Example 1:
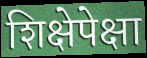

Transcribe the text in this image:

शिक्षेपेक्षा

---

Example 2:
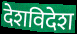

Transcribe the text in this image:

देशविदेश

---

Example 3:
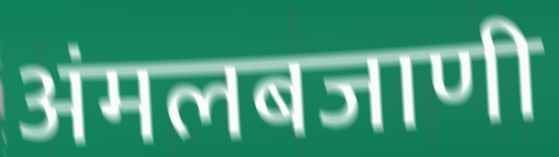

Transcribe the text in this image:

अंमलबजाणी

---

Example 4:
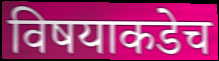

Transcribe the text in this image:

विषयाकडेच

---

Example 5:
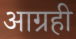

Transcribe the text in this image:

आग्रही